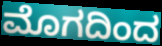
ಮೊಗದಿಂದ